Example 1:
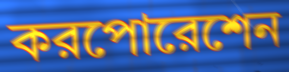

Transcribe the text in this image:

করপোরেশেন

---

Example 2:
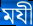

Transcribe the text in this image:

মযী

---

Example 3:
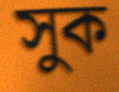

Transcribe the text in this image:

সুক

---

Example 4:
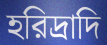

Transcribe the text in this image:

হরিদ্রাদি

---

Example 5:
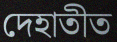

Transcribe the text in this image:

দেহাতীত